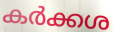
കർക്കശ